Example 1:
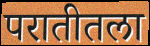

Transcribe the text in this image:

परातीतला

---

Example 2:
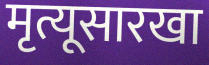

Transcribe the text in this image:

मृत्यूसारखा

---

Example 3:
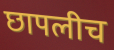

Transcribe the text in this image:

छापलीच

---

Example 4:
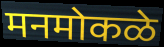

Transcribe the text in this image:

मनमोकळे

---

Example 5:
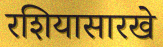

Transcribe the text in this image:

रशियासारखे